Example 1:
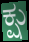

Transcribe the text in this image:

ಕ್ಷು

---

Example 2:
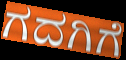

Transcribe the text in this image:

ಗದಗಿಗೆ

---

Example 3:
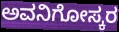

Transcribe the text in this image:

ಅವನಿಗೋಸ್ಕರ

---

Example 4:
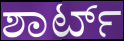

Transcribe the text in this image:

ಶಾರ್ಟ್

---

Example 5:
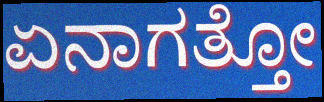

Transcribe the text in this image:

ಏನಾಗತ್ತೋ